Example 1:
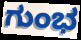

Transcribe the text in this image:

ಗುಂಭ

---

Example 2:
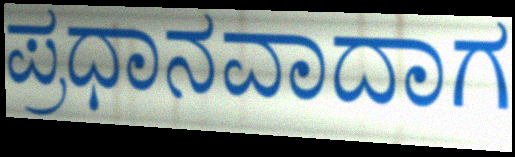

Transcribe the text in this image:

ಪ್ರಧಾನವಾದಾಗ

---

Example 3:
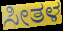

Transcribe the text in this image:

ಸೀತಳ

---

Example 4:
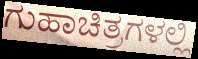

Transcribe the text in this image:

ಗುಹಾಚಿತ್ರಗಳಲ್ಲಿ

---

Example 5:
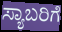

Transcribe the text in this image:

ಸ್ಯಾಬರಿಗೆ